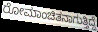
ರೋಮಾಂಚಿತನಾಗುತ್ತಿದ್ದೆ